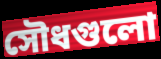
সৌধগুলো